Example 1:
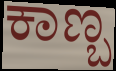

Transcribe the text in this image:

ಕಾಣ್ಬ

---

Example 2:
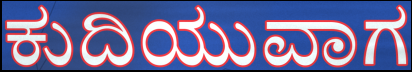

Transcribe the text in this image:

ಕುದಿಯುವಾಗ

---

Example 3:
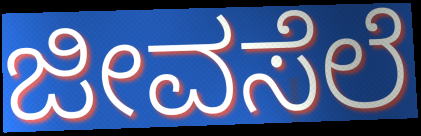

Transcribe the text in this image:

ಜೀವಸೆಲೆ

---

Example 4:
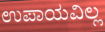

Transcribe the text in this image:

ಉಪಾಯವಿಲ್ಲ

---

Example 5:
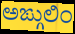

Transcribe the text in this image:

ಅಙ್ಗುಲಿಂ